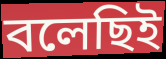
বলেছিই